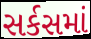
સર્કસમાં